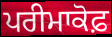
ਪਰੀਮਾਕੋਫ਼